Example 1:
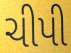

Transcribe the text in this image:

ચીપી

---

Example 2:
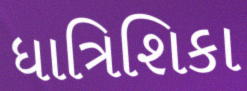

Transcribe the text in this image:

ધાત્રિશિકા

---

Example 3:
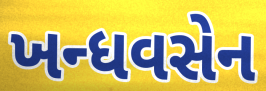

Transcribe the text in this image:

ખન્ધવસેન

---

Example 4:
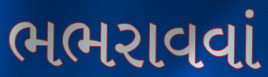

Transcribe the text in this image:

ભભરાવવાં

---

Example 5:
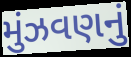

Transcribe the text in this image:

મુંઝવણનું